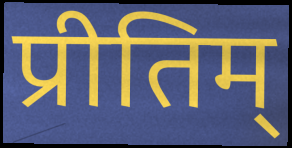
प्रीतिम्